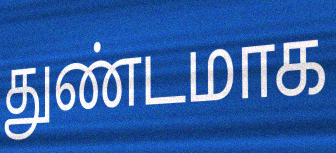
துண்டமாக